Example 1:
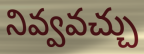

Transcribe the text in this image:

నివ్వవచ్చు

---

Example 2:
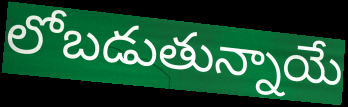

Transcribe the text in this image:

లోబడుతున్నాయే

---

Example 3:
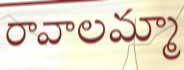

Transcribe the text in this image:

రావాలమ్మా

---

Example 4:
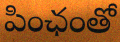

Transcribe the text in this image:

పింఛంతో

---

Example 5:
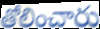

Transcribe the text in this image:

తోలించారు